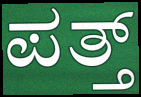
ಪತ್ತ್